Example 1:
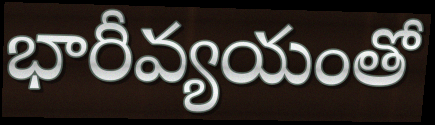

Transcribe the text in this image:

భారీవ్యయంతో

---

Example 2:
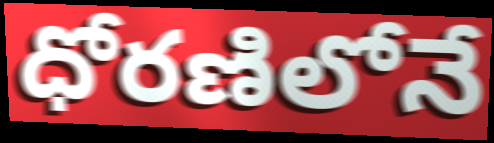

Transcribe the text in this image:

ధోరణిలోనే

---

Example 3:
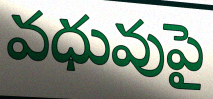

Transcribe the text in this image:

వధువుపై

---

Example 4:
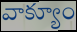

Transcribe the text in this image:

వాక్యూం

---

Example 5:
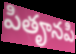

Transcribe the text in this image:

పితౄనపి